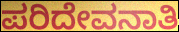
ಪರಿದೇವನಾತಿ